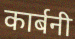
कार्बनी